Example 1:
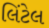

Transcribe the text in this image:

લિંટેલ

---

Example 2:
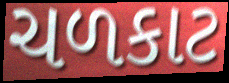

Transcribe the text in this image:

ચળકાટ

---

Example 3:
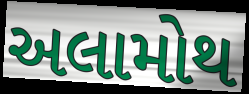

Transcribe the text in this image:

અલામોથ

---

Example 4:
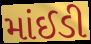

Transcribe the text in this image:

માંઈડી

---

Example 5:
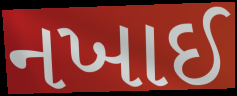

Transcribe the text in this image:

નખાઈ